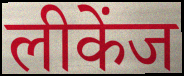
लीकेंज